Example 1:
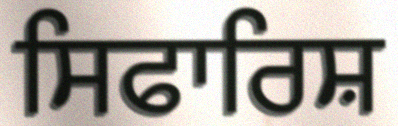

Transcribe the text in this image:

ਸਿਫਾਰਿਸ਼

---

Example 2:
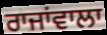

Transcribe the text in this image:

ਰਾਜਾਂਵਾਲਾ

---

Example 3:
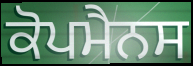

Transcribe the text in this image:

ਕੋਪਮੈਨਸ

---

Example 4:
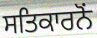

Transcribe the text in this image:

ਸਤਿਕਾਰਨੋਂ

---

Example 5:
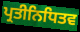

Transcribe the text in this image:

ਪ੍ਰਤੀਨਿਧਿਤਵ